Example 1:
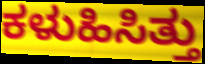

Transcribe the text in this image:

ಕಳುಹಿಸಿತ್ತು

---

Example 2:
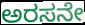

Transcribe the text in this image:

ಅರಸನೇ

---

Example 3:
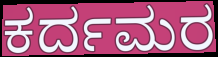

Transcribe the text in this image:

ಕರ್ದಮರ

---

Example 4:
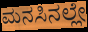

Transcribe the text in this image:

ಮನಸಿನಲ್ಲೇ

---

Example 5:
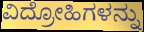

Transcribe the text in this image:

ವಿದ್ರೋಹಿಗಳನ್ನು